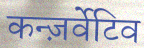
कन्ज़र्वेटिव